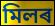
মিলৰ